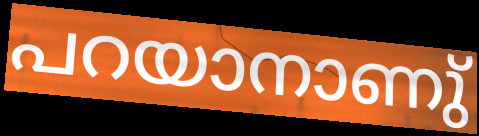
പറയാനാണു്